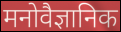
मनोवैज्ञानिक